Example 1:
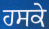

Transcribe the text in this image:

ਹਸਕੇ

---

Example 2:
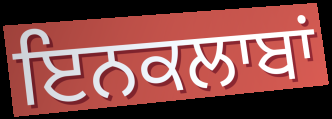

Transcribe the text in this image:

ਇਨਕਲਾਬਾਂ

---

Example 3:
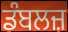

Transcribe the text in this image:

ਡੰਬਲਜ਼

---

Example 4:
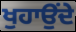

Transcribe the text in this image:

ਖੁਹਾਉਂਦੇ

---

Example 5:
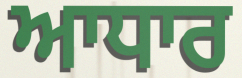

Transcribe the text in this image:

ਆਧਾਰ